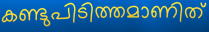
കണ്ടുപിടിത്തമാണിത്